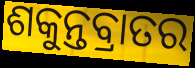
ଶକୁନ୍ତବ୍ରାତର